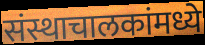
संस्थाचालकांमध्ये